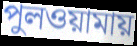
পুলওয়ামায়